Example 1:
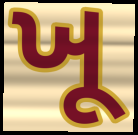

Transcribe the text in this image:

ખૂ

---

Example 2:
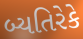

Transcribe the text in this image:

બ્યતિરેકે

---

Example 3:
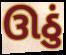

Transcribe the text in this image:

ઊઠું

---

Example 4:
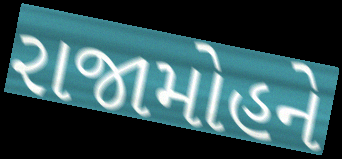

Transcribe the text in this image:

રાજામોહને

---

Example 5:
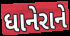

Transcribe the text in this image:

ધાનેરાને